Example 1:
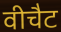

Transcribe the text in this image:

वीचैट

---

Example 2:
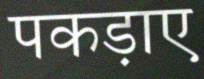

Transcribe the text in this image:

पकड़ाए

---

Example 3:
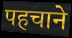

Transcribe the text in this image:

पहचाने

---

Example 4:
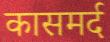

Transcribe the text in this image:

कासमर्द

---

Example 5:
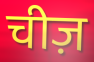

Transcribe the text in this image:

चीज़